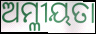
ଅମ୍ଳୀୟତା